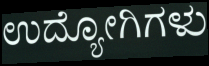
ಉದ್ಯೋಗಿಗಳು